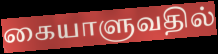
கையாளுவதில்